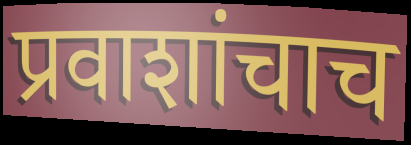
प्रवाशांचाच